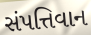
સંપત્તિવાન